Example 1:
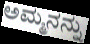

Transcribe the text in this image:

ಅಮ್ಮನನ್ನು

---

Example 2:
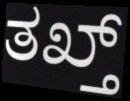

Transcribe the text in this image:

ತಖ್ತ್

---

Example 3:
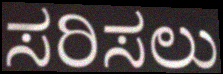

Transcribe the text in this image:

ಸರಿಸಲು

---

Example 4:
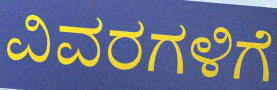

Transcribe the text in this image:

ವಿವರಗಳಿಗೆ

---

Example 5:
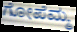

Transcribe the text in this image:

ಗೋಪೆಮ್ಮ